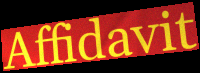
Affidavit